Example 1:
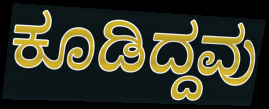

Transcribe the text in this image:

ಕೂಡಿದ್ದವು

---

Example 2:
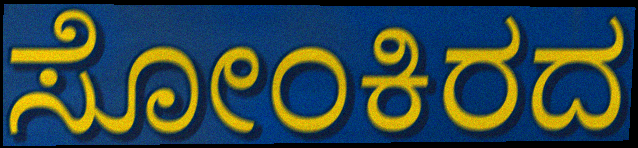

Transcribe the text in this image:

ಸೋಂಕಿರದ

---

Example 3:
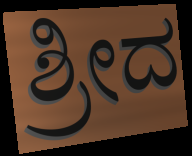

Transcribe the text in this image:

ಶ್ರೀದ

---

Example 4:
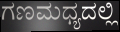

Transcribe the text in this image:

ಗಣಮಧ್ಯದಲ್ಲಿ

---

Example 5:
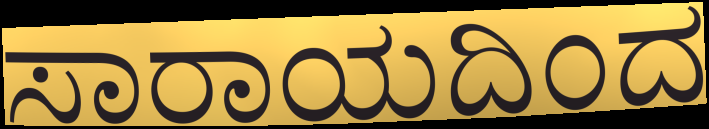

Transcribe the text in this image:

ಸಾರಾಯದಿಂದ